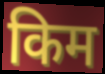
किम